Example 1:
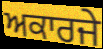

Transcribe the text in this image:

ਅਕਾਰਜੇ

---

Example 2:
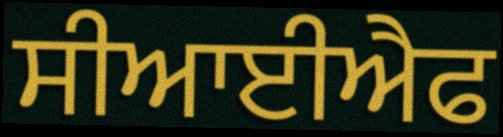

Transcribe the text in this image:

ਸੀਆਈਐਫ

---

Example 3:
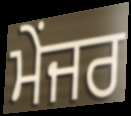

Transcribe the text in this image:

ਮੇਂਜਰ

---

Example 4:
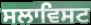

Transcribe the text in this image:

ਸਲਾਵਿਸਟ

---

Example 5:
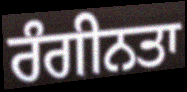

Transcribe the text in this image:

ਰੰਗੀਨਤਾ